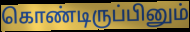
கொண்டிருப்பினும்